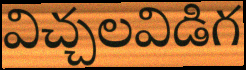
విచ్చలవిడిగ